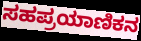
ಸಹಪ್ರಯಾಣಿಕನ